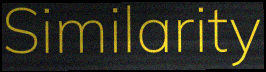
Similarity